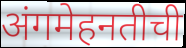
अंगमेहनतीची